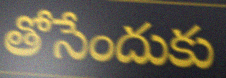
తోసేందుకు